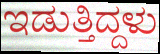
ಇಡುತ್ತಿದ್ದಳು